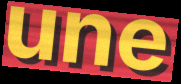
une